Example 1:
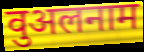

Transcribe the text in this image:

वुअलनाम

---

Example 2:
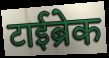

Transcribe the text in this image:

टाईब्रेक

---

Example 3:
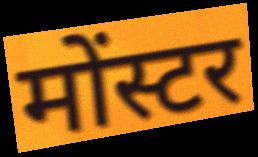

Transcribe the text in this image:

मोंस्टर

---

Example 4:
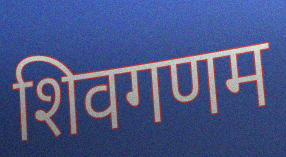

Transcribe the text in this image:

शिवगणम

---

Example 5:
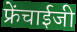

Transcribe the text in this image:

फ्रेंचाईजी